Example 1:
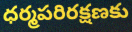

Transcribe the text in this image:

ధర్మపరిరక్షణకు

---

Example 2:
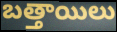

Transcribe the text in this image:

బత్తాయిలు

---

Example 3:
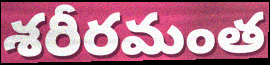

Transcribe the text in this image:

శరీరమంత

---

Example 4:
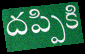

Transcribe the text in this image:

దప్పికి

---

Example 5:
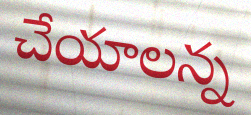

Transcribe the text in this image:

చేయాలన్న